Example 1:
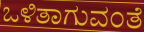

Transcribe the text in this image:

ಒಳಿತಾಗುವಂತೆ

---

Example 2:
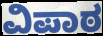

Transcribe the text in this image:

ವಿಪಾಠ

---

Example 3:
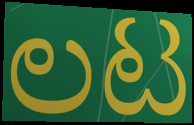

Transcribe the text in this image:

ಲಟ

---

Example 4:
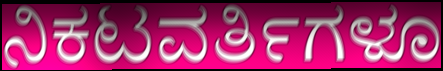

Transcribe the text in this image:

ನಿಕಟವರ್ತಿಗಳೂ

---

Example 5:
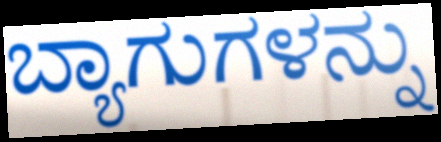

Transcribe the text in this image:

ಬ್ಯಾಗುಗಳನ್ನು